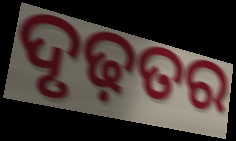
ଦୃଢ଼ତର